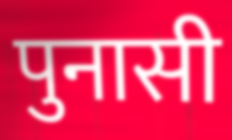
पुनासी